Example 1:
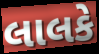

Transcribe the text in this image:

લાલકે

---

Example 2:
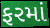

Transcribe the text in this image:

ફરમાં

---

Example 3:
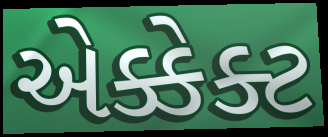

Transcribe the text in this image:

એક્કેક્ટ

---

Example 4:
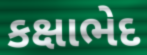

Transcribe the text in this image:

કક્ષાભેદ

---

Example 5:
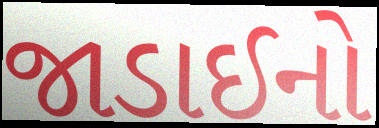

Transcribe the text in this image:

જાડાઈનો